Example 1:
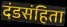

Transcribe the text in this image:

दंडसंहिता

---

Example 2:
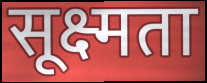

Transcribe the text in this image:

सूक्ष्मता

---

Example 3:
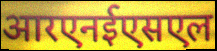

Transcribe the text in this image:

आरएनईएसएल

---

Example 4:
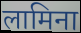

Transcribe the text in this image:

लामिना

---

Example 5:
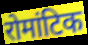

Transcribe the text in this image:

रोमांटिक